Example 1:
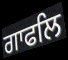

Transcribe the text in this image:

ਗਾਫਲਿ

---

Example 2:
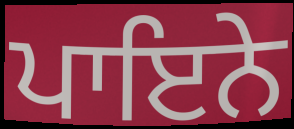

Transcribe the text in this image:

ਪਾਇਨੇ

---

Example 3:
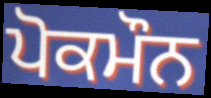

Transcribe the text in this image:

ਪੋਕਮੌਨ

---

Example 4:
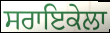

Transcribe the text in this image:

ਸਰਾਇਕੇਲਾ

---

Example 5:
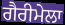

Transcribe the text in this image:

ਗੈਰੀਮੇਲਾ